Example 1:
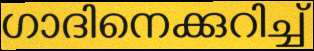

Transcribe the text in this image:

ഗാദിനെക്കുറിച്ച്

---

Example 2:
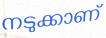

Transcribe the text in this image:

നടുക്കാണ്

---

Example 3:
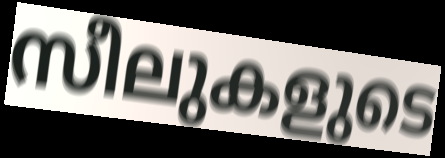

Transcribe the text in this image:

സീലുകളുടെ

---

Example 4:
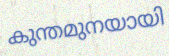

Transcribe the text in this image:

കുന്തമുനയായി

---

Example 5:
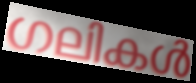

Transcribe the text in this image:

ഗലികൾ